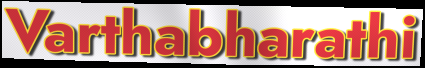
Varthabharathi